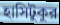
হাসিটুকুর